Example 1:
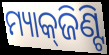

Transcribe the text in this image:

ମ୍ୟାକ୍‌ଜିଣ୍ଟି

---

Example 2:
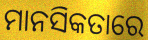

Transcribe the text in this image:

ମାନସିକତାରେ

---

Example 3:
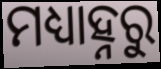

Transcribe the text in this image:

ମଧ୍ୟାହ୍ନରୁ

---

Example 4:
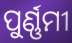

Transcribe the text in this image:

ପୁର୍ଣ୍ଣମୀ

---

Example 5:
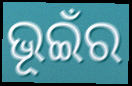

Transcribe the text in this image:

ଭୂଇଁର